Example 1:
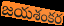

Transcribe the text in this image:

జయశంకర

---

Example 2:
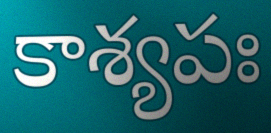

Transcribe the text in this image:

కాశ్యపః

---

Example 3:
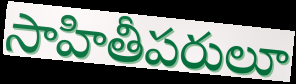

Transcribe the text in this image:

సాహితీపరులూ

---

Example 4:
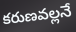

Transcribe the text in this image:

కరుణవల్లనే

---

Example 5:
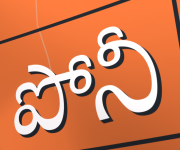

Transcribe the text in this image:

పోనీ